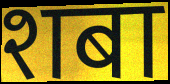
शबा